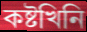
কষ্টখিনি